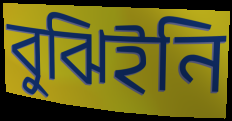
বুঝিইনি